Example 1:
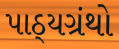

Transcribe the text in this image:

પાઠ્યગ્રંથો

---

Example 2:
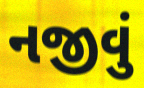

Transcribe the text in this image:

નજીવું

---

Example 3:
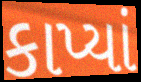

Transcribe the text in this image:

કાપ્યાં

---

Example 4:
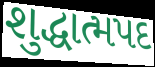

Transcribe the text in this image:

શુદ્ધાત્મપદ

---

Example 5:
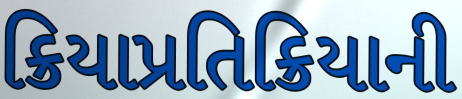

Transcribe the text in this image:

ક્રિયાપ્રતિક્રિયાની